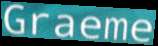
Graeme